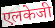
एलकेजी